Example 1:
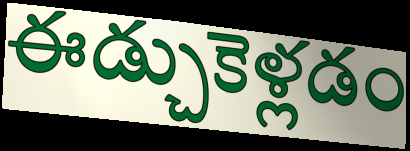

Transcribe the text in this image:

ఈడ్చుకెళ్లడం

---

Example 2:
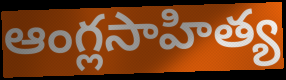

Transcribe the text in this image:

ఆంగ్లసాహిత్య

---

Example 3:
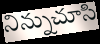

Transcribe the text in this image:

నిన్నుచూసి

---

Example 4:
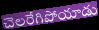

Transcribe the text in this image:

చెలరేగిపోయాడు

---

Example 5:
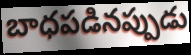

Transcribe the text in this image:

బాధపడినప్పుడు